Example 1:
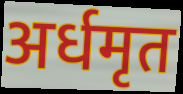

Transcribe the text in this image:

अर्धमृत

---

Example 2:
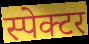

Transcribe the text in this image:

स्पेक्टर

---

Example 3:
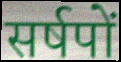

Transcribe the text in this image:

सर्षपों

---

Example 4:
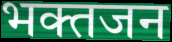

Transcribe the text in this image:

भक्तजन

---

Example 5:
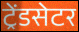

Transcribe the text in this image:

ट्रेंडसेटर